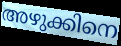
അഴുക്കിനെ